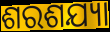
ଶରଶଯ୍ୟା